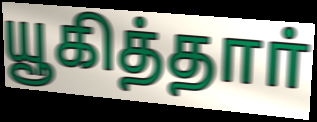
யூகித்தார்